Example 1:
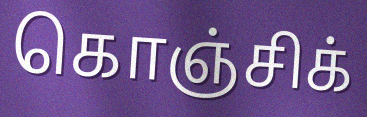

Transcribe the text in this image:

கொஞ்சிக்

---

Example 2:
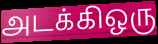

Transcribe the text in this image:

அடக்கிஒரு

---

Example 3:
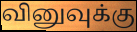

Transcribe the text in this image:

வினுவுக்கு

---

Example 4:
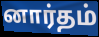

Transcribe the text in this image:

னார்தம்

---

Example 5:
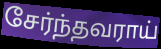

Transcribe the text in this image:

சேர்ந்தவராய்